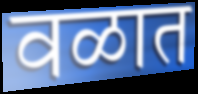
वळात